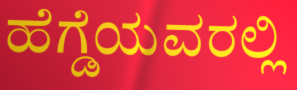
ಹೆಗ್ಡೆಯವರಲ್ಲಿ